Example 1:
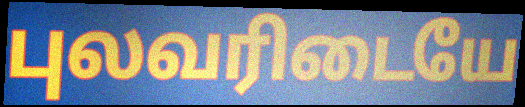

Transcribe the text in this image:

புலவரிடையே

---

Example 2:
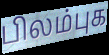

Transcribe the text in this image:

பிலம்புக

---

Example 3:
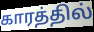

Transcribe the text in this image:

காரத்தில்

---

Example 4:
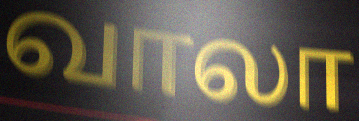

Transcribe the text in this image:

வாலா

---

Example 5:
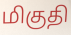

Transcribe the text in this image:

மிகுதி